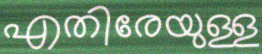
എതിരേയുള്ള